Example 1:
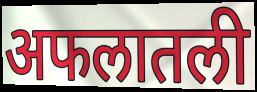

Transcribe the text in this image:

अफलातली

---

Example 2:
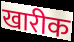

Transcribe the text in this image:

खारीक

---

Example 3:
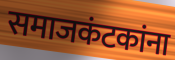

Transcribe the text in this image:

समाजकंटकांना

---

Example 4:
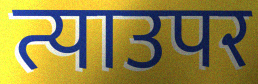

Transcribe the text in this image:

त्याउपर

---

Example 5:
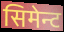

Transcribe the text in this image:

सिमेन्ट